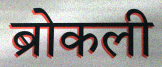
ब्रोकली